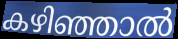
കഴിഞ്ഞാൽ